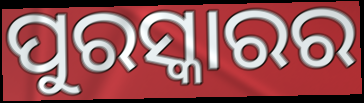
ପୁରସ୍କାରର